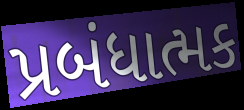
પ્રબંધાત્મક